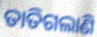
ତାତିଗଲାଣି